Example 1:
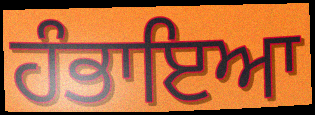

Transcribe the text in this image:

ਹੰਭਾਇਆ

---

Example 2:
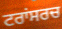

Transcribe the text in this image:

ਟਰਾਂਸਰਚ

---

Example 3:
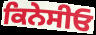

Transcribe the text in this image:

ਕਿਨੇਸੀਓ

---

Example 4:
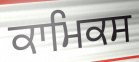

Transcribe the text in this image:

ਕਾਮਿਕਸ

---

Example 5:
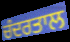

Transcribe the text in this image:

ਚੰਦਰਤਾਲ